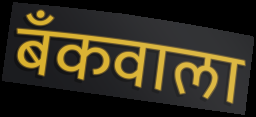
बँकवाला